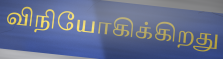
விநியோகிக்கிறது